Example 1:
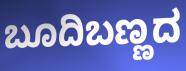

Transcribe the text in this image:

ಬೂದಿಬಣ್ಣದ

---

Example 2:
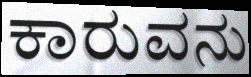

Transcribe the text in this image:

ಕಾರುವನು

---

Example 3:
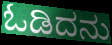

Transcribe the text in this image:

ಓಡಿದನು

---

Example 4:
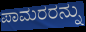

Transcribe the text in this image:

ಪಾಮರರನ್ನು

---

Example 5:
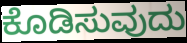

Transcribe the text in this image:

ಕೊಡಿಸುವುದು